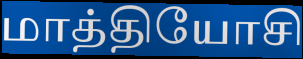
மாத்தியோசி